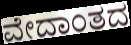
ವೇದಾಂತದ